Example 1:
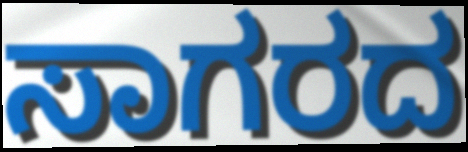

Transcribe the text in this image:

ಸಾಗರದ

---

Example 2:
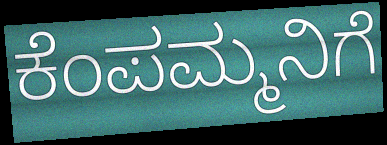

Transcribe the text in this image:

ಕೆಂಪಮ್ಮನಿಗೆ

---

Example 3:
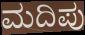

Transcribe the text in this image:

ಮದಿಪು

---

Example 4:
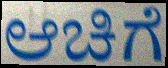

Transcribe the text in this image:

ಆಚಿಗೆ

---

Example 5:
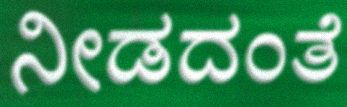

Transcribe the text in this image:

ನೀಡದಂತೆ